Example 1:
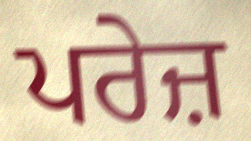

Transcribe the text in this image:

ਪਰੇਜ਼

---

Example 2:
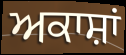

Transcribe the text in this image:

ਅਕਾਸ਼ਾਂ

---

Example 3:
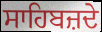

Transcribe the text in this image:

ਸਾਹਿਬਜ਼ਦੇ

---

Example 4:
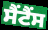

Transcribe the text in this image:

ਸੈਂਟੈਂਸ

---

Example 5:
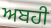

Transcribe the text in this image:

ਅਬਹੀ